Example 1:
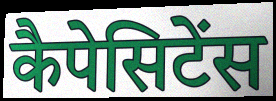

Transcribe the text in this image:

कैपेसिटेंस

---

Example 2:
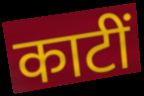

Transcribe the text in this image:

काटीं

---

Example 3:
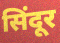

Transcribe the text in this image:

सिंदूर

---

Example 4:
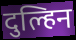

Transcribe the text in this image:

दुल्हिन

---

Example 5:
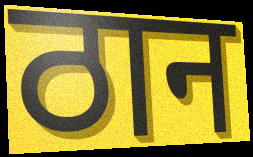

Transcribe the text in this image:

ठान